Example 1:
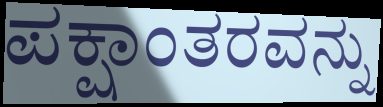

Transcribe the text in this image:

ಪಕ್ಷಾಂತರವನ್ನು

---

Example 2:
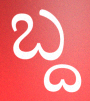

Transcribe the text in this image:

ಬ್ದ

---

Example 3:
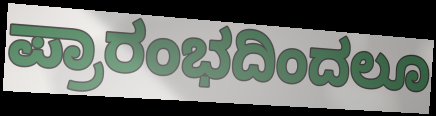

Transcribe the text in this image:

ಪ್ರಾರಂಭದಿಂದಲೂ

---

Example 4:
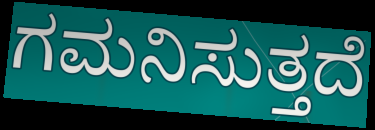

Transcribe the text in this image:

ಗಮನಿಸುತ್ತದೆ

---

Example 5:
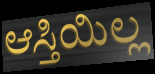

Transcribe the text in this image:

ಆಸ್ತಿಯಿಲ್ಲ